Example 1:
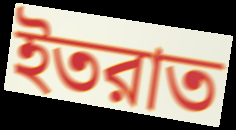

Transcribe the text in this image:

ইতরাত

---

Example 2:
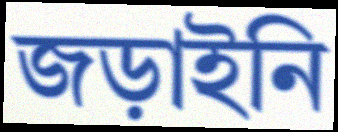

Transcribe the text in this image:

জড়াইনি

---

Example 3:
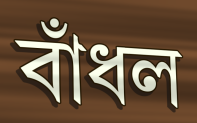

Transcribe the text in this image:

বাঁধল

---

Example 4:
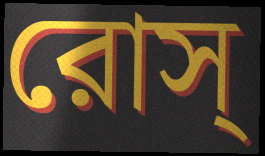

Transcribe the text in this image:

রোস্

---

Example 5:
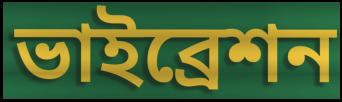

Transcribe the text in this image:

ভাইব্রেশন